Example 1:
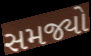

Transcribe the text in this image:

સમજ્યો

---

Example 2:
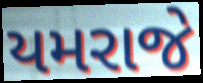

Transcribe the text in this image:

યમરાજે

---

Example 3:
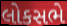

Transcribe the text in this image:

લોકસભે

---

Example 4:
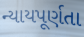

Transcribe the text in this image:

ન્યાયપૂર્ણતા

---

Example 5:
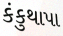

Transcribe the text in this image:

કંકુથાપા